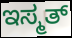
ಇಸ್ಮತ್